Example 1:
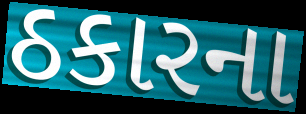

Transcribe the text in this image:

ઠકારના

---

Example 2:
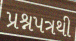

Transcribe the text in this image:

પ્રશ્નપત્રથી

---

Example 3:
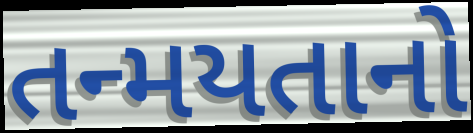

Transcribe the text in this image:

તન્મયતાનો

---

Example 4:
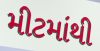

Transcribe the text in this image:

મીટમાંથી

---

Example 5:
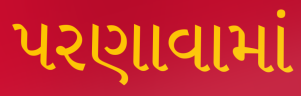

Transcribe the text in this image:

પરણાવામાં